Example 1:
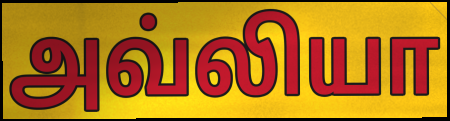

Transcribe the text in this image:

அவ்லியா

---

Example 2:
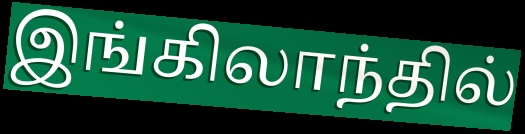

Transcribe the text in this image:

இங்கிலாந்தில்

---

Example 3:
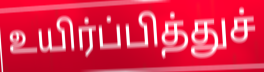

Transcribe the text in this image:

உயிர்ப்பித்துச்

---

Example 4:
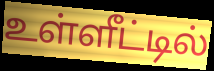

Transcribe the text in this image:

உள்ளீட்டில்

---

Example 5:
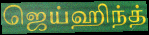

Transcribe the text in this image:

ஜெய்ஹிந்த்